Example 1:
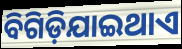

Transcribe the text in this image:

ବିଗିଡ଼ିଯାଇଥାଏ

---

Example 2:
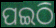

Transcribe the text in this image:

ପଇଠି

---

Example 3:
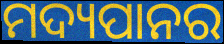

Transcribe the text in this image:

ମଦ୍ୟପାନର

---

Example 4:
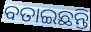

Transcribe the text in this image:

ବତାଇଛନ୍ତି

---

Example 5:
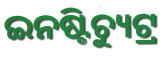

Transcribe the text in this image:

ଇନଷ୍ଟିଚ୍ୟୁଟ୍ର